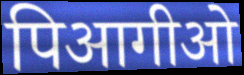
पिआगीओ